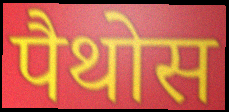
पैथोस